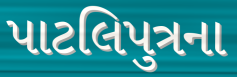
પાટલિપુત્રના